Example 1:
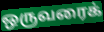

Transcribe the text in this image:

ஒருவரைக்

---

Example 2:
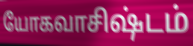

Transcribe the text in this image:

யோகவாசிஷ்டம்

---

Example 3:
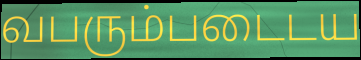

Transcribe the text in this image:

வபரும்படைடய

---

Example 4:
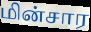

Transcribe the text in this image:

மின்சார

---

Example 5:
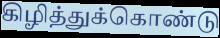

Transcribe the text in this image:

கிழித்துக்கொண்டு